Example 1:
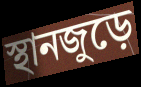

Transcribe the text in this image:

স্থানজুড়ে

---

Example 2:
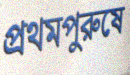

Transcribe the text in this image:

প্রথমপুরুষে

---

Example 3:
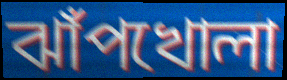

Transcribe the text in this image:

ঝাঁপখোলা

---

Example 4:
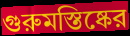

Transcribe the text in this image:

গুরুমস্তিষ্কের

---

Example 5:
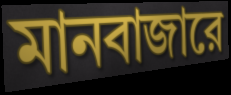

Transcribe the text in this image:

মানবাজারে